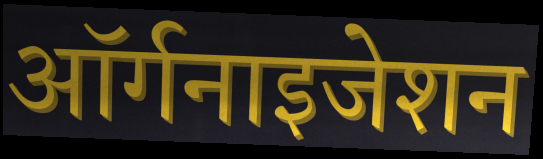
ऑर्गनाइजेशन